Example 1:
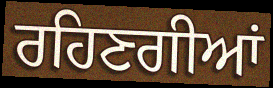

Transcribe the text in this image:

ਰਹਿਣਗੀਆਂ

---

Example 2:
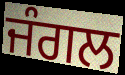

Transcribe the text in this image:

ਜੰਗਲ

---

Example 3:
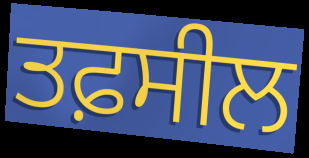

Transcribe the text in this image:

ਤਫ਼ਸੀਲ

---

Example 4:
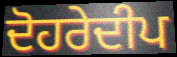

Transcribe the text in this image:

ਦੋਹਰੇਦੀਪ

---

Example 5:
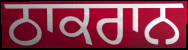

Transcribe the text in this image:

ਠਾਕਰਾਨ